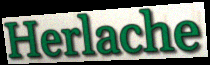
Herlache